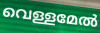
വെള്ളമേൽ